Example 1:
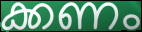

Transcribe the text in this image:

ക്കണം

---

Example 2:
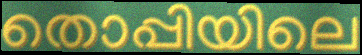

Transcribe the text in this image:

തൊപ്പിയിലെ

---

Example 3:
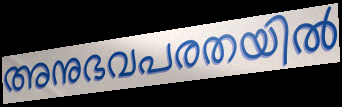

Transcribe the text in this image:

അനുഭവപരതയിൽ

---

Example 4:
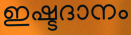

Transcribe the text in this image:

ഇഷ്ടദാനം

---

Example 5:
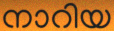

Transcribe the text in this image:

നാറിയ